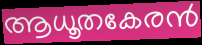
ആധൂതകേരൻ